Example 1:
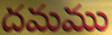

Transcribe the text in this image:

దమము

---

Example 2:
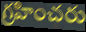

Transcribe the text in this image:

గ్రహించరు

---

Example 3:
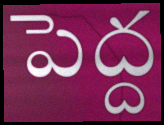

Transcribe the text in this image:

పెద్ద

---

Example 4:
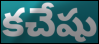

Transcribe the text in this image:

కచేషు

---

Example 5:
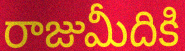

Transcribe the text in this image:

రాజుమీదికి